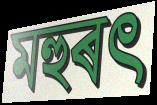
মহুৰৎ